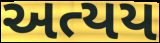
અત્યય